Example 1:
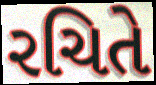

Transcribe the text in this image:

રચિતે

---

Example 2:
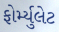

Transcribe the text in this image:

ફોર્મ્યુલેટ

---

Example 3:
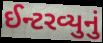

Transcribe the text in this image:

ઈન્ટરવ્યુનું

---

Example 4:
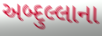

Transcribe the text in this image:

અબ્દુલ્લાના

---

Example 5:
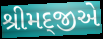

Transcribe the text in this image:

શ્રીમદ્જીએ